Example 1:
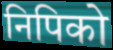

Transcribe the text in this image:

निपिको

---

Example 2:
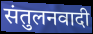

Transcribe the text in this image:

संतुलनवादी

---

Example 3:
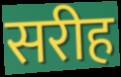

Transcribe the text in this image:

सरीह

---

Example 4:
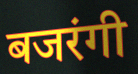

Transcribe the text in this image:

बजरंगी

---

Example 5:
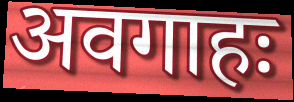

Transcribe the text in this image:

अवगाहः